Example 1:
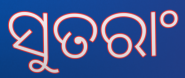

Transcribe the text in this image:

ସୁତରାଂ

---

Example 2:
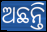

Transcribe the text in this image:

ଅଛନ୍ତି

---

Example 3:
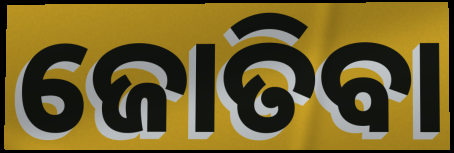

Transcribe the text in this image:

ଜୋତିବା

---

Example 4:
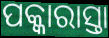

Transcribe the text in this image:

ପକ୍କାରାସ୍ତା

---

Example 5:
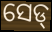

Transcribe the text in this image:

ସେଡ୍